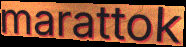
marattok